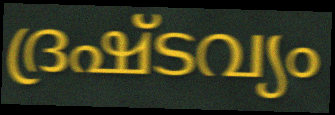
ദ്രഷ്ടവ്യം